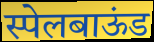
स्पेलबाऊंड